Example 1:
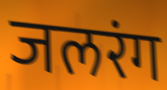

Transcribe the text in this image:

जलरंग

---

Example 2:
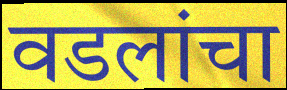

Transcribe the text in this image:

वडलांचा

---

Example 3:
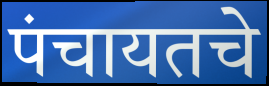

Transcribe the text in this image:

पंचायतचे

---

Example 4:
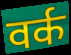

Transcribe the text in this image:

वर्क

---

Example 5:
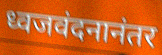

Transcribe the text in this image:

ध्वजवंदनानंतर